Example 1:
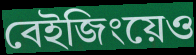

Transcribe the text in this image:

বেইজিংয়েও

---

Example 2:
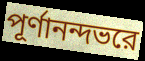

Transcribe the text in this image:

পূর্ণানন্দভরে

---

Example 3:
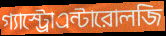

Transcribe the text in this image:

গ্যাস্ট্রোএন্টারোলজি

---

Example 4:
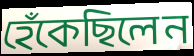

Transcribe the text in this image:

হেঁকেছিলেন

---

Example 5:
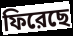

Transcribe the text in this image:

ফিরেছে